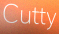
Cutty